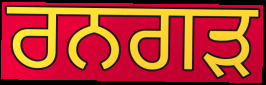
ਰਨਗੜ